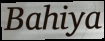
Bahiya